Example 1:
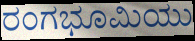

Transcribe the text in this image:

ರಂಗಭೂಮಿಯು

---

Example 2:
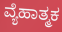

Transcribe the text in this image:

ವ್ಯೆಹಾತ್ಮಕ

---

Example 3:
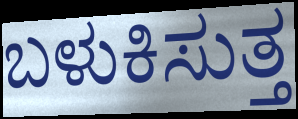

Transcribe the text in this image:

ಬಳುಕಿಸುತ್ತ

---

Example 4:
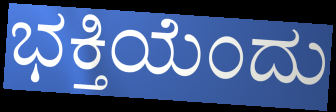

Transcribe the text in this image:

ಭಕ್ತಿಯೆಂದು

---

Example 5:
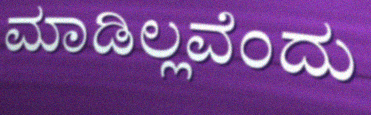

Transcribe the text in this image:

ಮಾಡಿಲ್ಲವೆಂದು